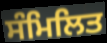
ਸੰਮਿਲਿਤ